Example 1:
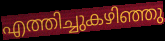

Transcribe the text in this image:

എത്തിച്ചുകഴിഞ്ഞു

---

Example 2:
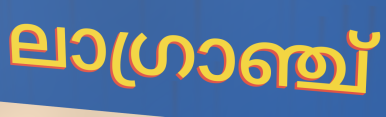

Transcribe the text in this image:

ലാഗ്രാഞ്ച്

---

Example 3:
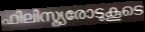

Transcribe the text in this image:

ഫിലിസ്ത്യരോടുകൂടെ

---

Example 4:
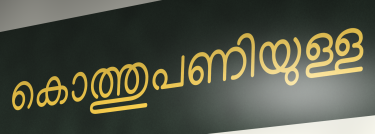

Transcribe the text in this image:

കൊത്തുപണിയുള്ള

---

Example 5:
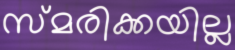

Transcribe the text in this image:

സ്മരിക്കയില്ല